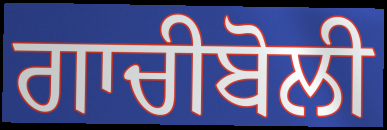
ਗਾਚੀਬੋਲੀ